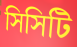
সিসিটি